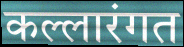
कल्लारंगत